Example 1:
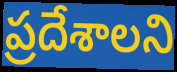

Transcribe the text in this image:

ప్రదేశాలని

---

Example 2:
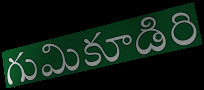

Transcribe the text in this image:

గుమికూడిరి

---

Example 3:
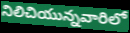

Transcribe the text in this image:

నిలిచియున్నవారిలో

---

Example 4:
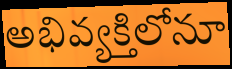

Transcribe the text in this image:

అభివ్యక్తిలోనూ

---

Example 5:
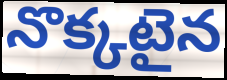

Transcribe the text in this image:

నొక్కటైన